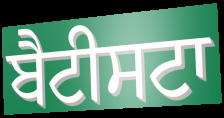
ਬੈਟੀਸਟਾ